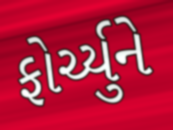
ફોર્ચ્યુને